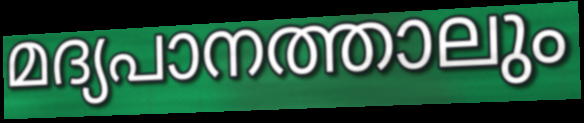
മദ്യപാനത്താലും